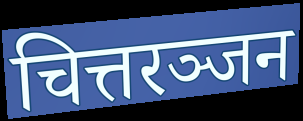
चित्तरञ्जन